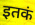
इतकं